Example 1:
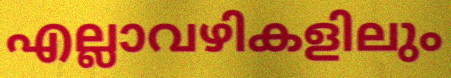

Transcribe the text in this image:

എല്ലാവഴികളിലും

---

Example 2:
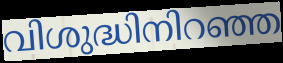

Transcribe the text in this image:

വിശുദ്ധിനിറഞ്ഞ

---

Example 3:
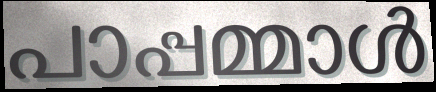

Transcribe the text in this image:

പാപ്പമ്മാൾ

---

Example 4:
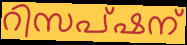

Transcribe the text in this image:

റിസപ്ഷന്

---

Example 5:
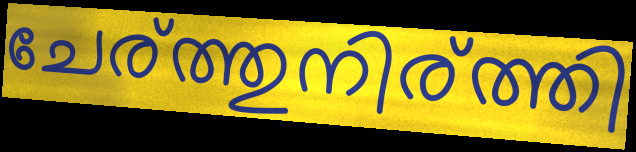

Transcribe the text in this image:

ചേര്ത്തുനിര്ത്തി